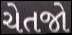
ચેતજો